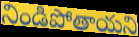
నిండిపోతాయని